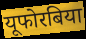
यूफोरबिया